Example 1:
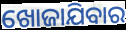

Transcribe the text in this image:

ଖୋଜାଯିବାର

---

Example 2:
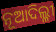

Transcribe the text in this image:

ନୂଆଦିଲ୍ଳୀ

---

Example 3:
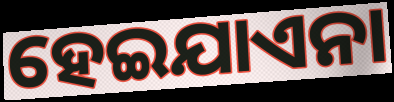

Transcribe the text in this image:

ହେଇଯାଏନା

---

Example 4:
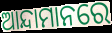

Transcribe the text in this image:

ଆନ୍ଦାମାନରେ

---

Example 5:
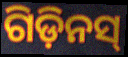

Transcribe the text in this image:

ଗିଡ଼ିନସ୍